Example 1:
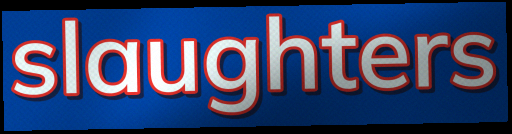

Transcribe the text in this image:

slaughters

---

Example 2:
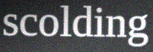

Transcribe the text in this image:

scolding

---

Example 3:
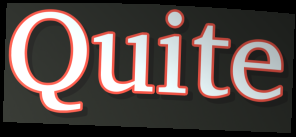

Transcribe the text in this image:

Quite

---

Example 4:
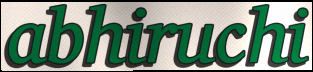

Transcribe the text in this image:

abhiruchi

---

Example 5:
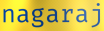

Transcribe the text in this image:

nagaraj